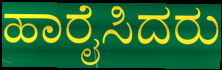
ಹಾರೈಸಿದರು